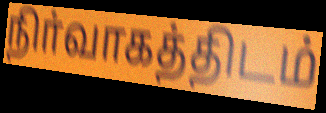
நிர்வாகத்திடம்